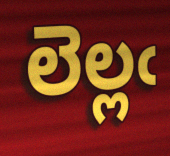
లెల్లఁ